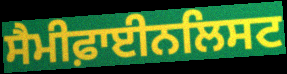
ਸੈਮੀਫ਼ਾਈਨਲਿਸਟ